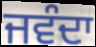
ਜਵੰਦਾ